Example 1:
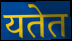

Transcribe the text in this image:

यतेत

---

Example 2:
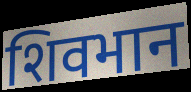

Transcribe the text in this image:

शिवभान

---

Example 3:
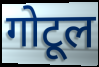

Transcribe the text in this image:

गोटूल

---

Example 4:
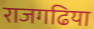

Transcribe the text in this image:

राजगढिया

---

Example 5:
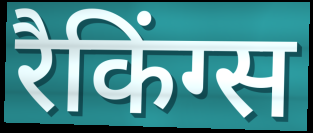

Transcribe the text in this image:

रैकिंग्स